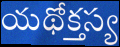
యథోక్తస్య